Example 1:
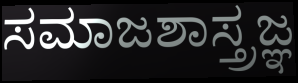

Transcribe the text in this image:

ಸಮಾಜಶಾಸ್ತ್ರಜ್ಞ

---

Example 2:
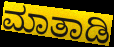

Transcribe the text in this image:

ಮಾತಾಡಿ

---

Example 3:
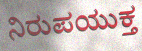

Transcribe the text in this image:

ನಿರುಪಯುಕ್ತ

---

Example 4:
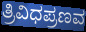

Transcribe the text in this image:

ತ್ರಿವಿಧಪ್ರಣವ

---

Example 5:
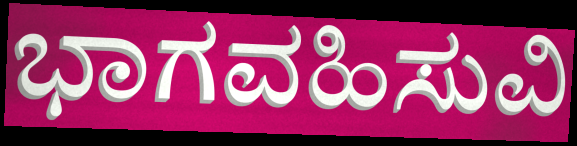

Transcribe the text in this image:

ಭಾಗವಹಿಸುವಿ